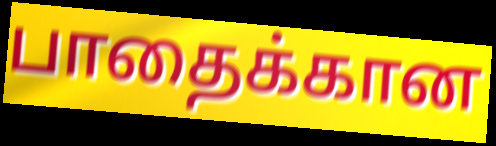
பாதைக்கான